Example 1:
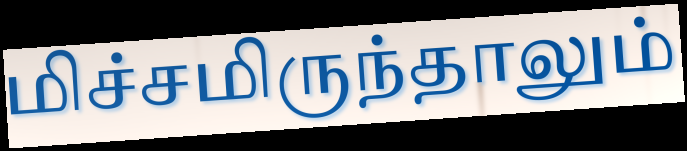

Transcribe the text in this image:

மிச்சமிருந்தாலும்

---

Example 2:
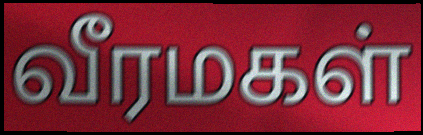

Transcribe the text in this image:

வீரமகள்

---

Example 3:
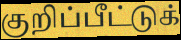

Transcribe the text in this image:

குறிப்பீட்டுக்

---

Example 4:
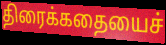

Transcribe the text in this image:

திரைக்கதையைச்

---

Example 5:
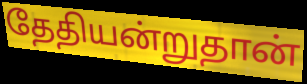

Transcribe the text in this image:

தேதியன்றுதான்